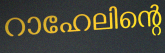
റാഹേലിന്റെ